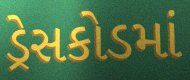
ડ્રેસકોડમાં